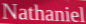
Nathaniel